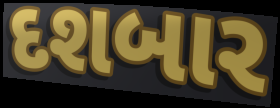
દશબાર